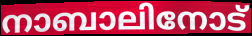
നാബാലിനോട്